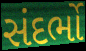
સંદર્ભો